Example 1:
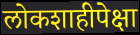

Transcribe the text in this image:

लोकशाहीपेक्षा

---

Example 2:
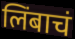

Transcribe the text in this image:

लिंबाचं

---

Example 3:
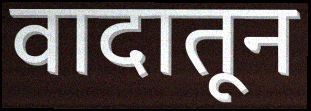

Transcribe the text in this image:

वादातून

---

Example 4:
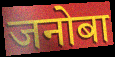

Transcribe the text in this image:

जनोबा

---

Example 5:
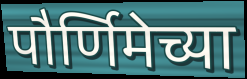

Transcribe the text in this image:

पौर्णिमेच्या